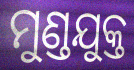
ମୁଣ୍ଡଯୁକ୍ତ